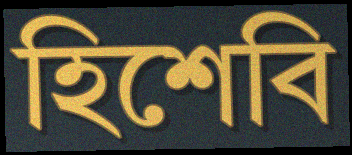
হিশেবি